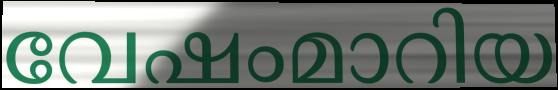
വേഷംമാറിയ